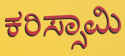
ಕರಿಸ್ಸಾಮಿ